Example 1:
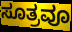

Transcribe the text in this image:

ಸೂತ್ರವೂ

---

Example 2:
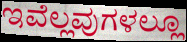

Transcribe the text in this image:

ಇವೆಲ್ಲವುಗಳಲ್ಲೂ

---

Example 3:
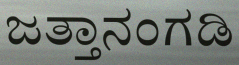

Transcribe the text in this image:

ಜತ್ತಾನಂಗಡಿ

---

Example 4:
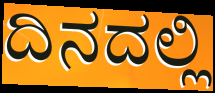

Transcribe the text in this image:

ದಿನದಲ್ಲಿ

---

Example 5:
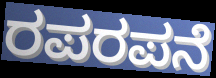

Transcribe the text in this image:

ರಪರಪನೆ